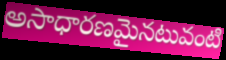
అసాధారణమైనటువంటి